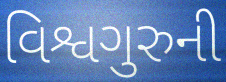
વિશ્વગુરુની